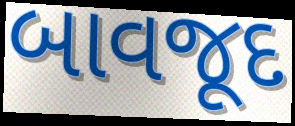
બાવજૂદ